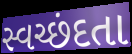
સ્વચ્છંદતા